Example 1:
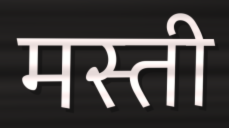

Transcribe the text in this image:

मस्‍ती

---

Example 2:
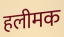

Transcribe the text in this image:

हलीमक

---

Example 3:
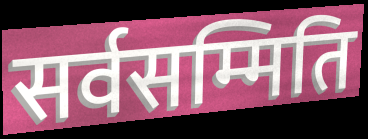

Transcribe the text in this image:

सर्वसम्मिति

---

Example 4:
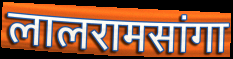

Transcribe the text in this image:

लालरामसांगा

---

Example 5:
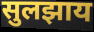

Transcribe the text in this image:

सुलझाय